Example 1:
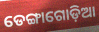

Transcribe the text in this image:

ଡେଙ୍ଗାଗୋଡ଼ିଆ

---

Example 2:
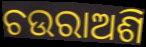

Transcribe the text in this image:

ଚଉରାଅଶି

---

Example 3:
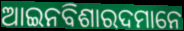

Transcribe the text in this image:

ଆଇନବିଶାରଦମାନେ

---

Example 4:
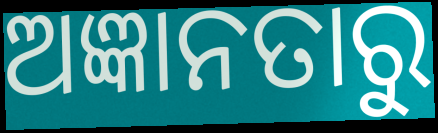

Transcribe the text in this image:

ଅଜ୍ଞାନତାରୁ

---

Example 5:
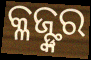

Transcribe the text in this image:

କ୍ଳଜ୍ଙ୍କର